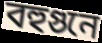
বহুগুনে